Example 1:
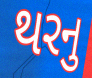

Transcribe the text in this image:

થરનુ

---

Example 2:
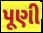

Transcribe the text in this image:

પૂણી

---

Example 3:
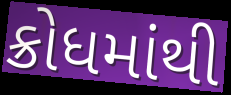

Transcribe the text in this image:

ક્રોધમાંથી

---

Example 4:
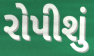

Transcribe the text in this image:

રોપીશું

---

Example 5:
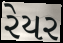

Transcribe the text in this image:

રેયર